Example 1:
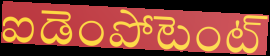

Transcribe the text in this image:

ఐడెంపోటెంట్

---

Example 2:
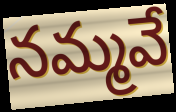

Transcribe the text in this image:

నమ్మవే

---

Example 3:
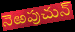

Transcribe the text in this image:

నెఱపుచున్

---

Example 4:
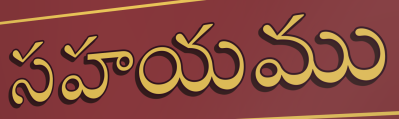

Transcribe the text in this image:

సహయము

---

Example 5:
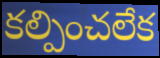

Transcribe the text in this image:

కల్పించలేక